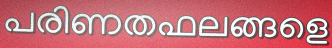
പരിണതഫലങ്ങളെ